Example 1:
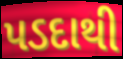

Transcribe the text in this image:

પડદાથી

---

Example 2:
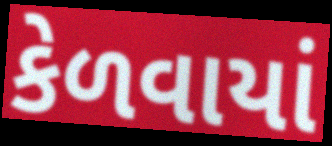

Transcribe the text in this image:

કેળવાયાં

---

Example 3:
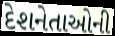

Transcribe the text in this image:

દેશનેતાઓની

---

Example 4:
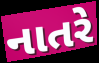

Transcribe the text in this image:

નાતરે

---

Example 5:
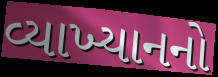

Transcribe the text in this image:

વ્યાખ્યાનનો